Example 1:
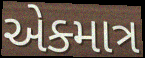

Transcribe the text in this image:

એક્માત્ર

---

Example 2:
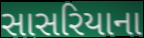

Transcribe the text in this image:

સાસરિયાના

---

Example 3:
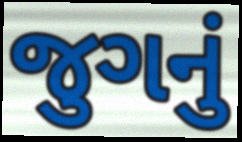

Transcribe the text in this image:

જુગનું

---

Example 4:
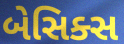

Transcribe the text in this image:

બેસિક્સ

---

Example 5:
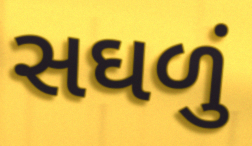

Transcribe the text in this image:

સઘળું